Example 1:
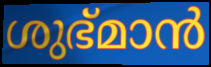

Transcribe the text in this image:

ശുഭ്മാൻ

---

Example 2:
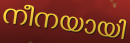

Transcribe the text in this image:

നീനയായി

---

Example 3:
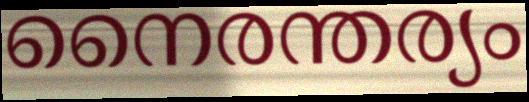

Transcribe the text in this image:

നൈരന്തര്യം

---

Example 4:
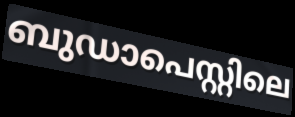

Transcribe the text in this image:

ബുഡാപെസ്റ്റിലെ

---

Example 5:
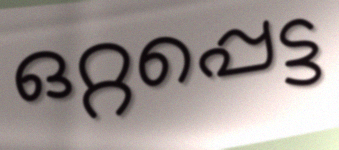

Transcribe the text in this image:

ഒറ്റപ്പെട്ട